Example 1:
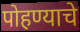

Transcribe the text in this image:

पोहण्याचे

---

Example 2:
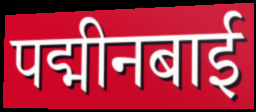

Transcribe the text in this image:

पद्मीनबाई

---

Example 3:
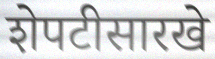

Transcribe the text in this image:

शेपटीसारखे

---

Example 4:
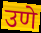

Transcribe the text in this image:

उणे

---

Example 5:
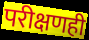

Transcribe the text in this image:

परीक्षणही